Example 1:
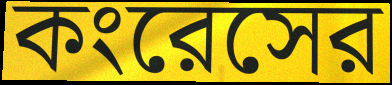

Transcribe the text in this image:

কংরেসের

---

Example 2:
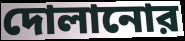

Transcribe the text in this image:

দোলানোর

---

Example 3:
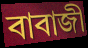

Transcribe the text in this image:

বাবাজী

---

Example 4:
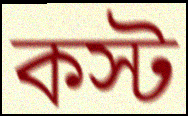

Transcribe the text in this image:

কস্ট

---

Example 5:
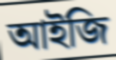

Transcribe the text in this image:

আইজি